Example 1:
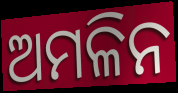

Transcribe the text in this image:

ଅମଳିନ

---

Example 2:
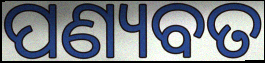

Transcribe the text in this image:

ପଣ୍ୟବତ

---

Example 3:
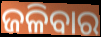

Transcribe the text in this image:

ଜଳିବାର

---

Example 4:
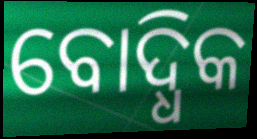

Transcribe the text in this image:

ବୋଦ୍ଧିକ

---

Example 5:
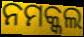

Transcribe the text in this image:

ନମକ୍କଲ